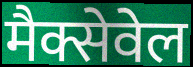
मैक्सेवेल